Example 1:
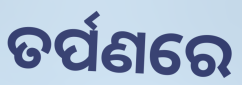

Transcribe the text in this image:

ତର୍ପଣରେ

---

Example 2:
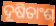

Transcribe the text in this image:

ଦୂଷିତାଂଶ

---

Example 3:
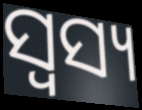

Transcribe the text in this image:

ସ୍ଵସ୍ଯ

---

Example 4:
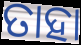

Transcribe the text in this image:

ତାହା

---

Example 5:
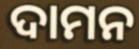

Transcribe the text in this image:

ଦାମନ